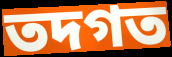
তদগত